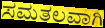
ಸಮತಲವಾಗಿ